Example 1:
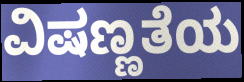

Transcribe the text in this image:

ವಿಷಣ್ಣತೆಯ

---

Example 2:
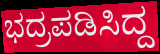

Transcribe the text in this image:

ಭದ್ರಪಡಿಸಿದ್ದ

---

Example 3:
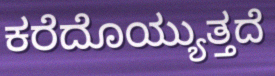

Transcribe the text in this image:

ಕರೆದೊಯ್ಯುತ್ತದೆ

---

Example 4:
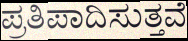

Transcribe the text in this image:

ಪ್ರತಿಪಾದಿಸುತ್ತವೆ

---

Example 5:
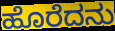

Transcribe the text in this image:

ಹೊರೆದನು